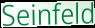
Seinfeld